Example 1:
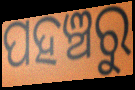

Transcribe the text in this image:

ପହଞ୍ଚରୁ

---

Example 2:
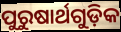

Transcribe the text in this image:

ପୁରୁଷାର୍ଥଗୁଡ଼ିକ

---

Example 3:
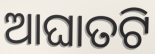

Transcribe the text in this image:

ଆଘାତଟି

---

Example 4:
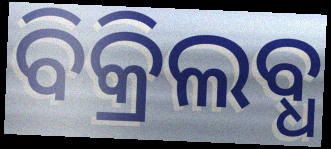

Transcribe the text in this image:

ବିକ୍ରିଲବ୍ଧ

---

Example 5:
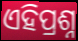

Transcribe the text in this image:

ଏହିପ୍ରଶ୍ନ